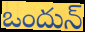
ఒందున్